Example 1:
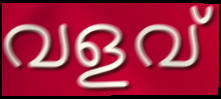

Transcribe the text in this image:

വളവ്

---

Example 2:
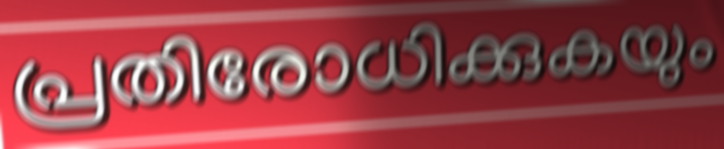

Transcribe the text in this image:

പ്രതിരോധിക്കുകയും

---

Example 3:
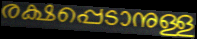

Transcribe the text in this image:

രക്ഷപ്പെടാനുള്ള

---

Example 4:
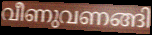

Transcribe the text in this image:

വീണുവണങ്ങി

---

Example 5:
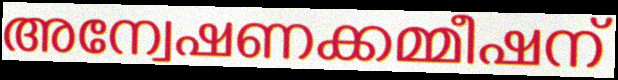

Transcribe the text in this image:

അന്വേഷണക്കമ്മീഷന്